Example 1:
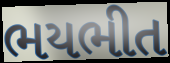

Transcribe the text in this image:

ભયભીત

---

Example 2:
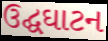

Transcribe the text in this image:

ઉદ્ઘઘાટન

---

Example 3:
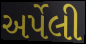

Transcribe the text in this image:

અર્પેલી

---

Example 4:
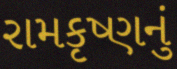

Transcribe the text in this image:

રામકૃષ્ણનું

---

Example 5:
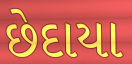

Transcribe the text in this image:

છેદાયા